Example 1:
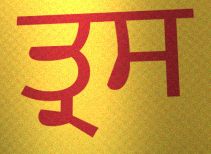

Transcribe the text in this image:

ਤ੍ਰਸ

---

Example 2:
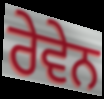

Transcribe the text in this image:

ਰੇਵੇਨ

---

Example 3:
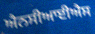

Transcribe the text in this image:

ਐਨਸੀਆਈਐਸ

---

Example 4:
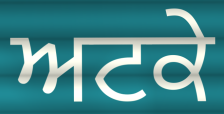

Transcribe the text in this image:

ਅਟਕੇ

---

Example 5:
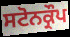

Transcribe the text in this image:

ਸਟੋਨਕ੍ਰੌਪ